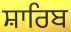
ਸ਼ਾਰਿਬ